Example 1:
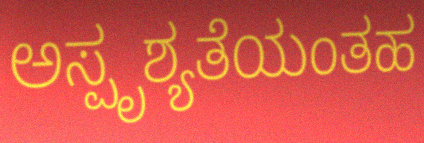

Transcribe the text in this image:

ಅಸ್ಪೃಶ್ಯತೆಯಂತಹ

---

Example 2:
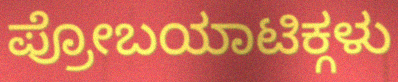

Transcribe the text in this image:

ಪ್ರೋಬಯಾಟಿಕ್ಗಳು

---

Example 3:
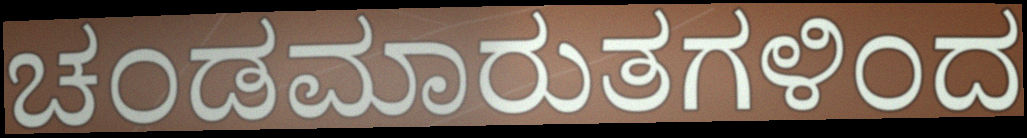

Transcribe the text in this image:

ಚಂಡಮಾರುತಗಳಿಂದ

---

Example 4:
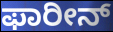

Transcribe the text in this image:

ಫಾರೀನ್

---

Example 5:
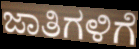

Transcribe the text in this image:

ಜಾತಿಗಳಿಗೆ